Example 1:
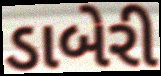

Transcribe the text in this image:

ડાબેરી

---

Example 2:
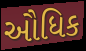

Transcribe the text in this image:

ઔધિક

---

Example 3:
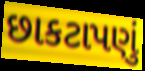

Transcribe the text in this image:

છાકટાપણું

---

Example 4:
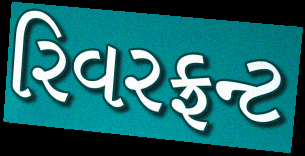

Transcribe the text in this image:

રિવરફ્રન્ટ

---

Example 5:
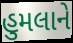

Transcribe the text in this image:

હુમલાને